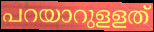
പറയാറുളളത്